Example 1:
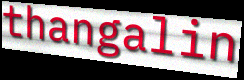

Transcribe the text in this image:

thangalin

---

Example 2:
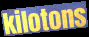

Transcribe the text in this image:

kilotons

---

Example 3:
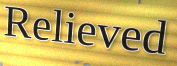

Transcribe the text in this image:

Relieved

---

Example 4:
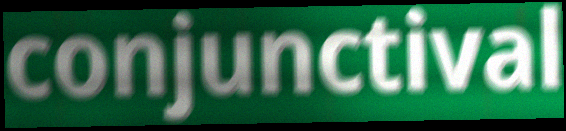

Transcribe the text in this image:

conjunctival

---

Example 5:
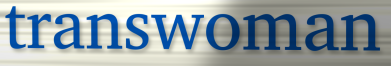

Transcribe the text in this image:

transwoman